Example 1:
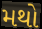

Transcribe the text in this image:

મથો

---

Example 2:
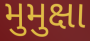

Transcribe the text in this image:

મુમુક્ષા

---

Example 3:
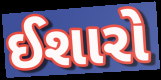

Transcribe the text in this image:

ઈશારો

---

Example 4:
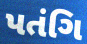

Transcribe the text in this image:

પતંગિ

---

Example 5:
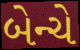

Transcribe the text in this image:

બેન્ચે